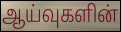
ஆய்வுகளின்